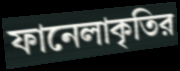
ফানেলাকৃতির